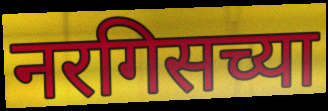
नरगिसच्या